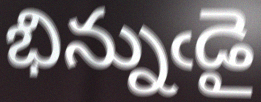
భిన్నుఁడై